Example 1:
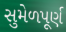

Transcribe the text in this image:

સુમેળપૂર્ણ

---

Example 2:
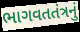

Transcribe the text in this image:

ભાગવતતંત્રનું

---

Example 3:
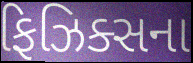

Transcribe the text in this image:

ફિઝિક્સના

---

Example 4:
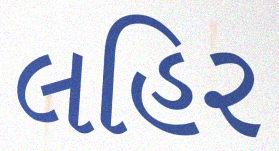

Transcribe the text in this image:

લહિર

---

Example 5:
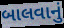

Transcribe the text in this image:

બાલવાનું